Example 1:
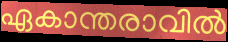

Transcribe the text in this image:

ഏകാന്തരാവിൽ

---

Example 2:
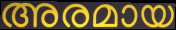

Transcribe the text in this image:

അരമായ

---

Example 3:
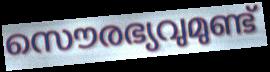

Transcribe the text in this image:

സൌരഭ്യവുമുണ്ട്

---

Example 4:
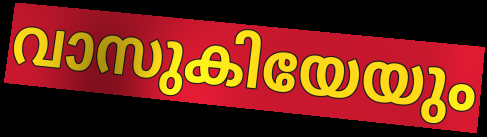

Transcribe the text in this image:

വാസുകിയേയും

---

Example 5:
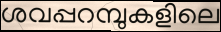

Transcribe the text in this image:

ശവപ്പറമ്പുകളിലെ